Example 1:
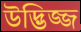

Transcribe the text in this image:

উদ্ভিজ্জ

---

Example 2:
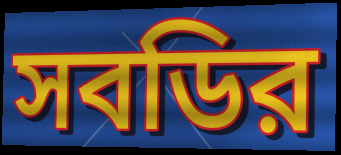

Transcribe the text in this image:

সবডির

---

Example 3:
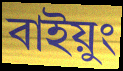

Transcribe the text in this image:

বাইয়ুং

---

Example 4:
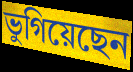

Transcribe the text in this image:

ভুগিয়েছেন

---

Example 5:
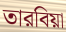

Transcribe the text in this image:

তারবিয়া